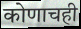
कोणाचही